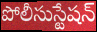
పోలీసుస్టేషన్